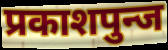
प्रकाशपुन्ज